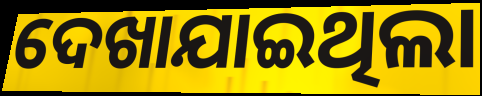
ଦେଖାଯାଇଥିଲା